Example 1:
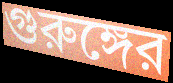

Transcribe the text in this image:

গুরুঙ্গের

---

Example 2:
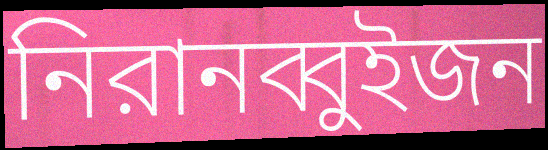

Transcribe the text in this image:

নিরানব্বুইজন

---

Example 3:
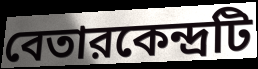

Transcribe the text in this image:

বেতারকেন্দ্রটি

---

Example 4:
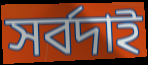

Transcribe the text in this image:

সর্বদাই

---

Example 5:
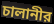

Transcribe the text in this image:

চালানীর